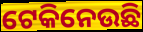
ଟେକିନେଉଛି